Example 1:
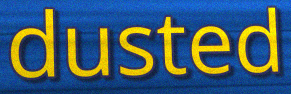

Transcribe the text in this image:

dusted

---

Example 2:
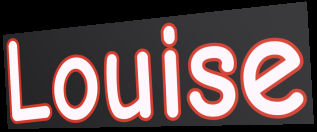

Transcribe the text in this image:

Louise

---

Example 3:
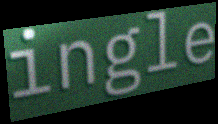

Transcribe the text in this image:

ingle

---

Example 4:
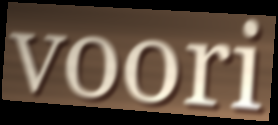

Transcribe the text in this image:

voori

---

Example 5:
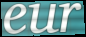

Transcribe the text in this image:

eur